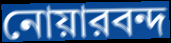
নোয়ারবন্দ